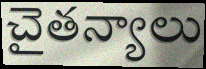
చైతన్యాలు